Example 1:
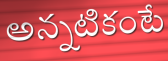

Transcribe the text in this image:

అన్నటికంటే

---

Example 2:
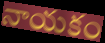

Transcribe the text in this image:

నాయకం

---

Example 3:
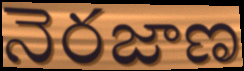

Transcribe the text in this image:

నెరజాణ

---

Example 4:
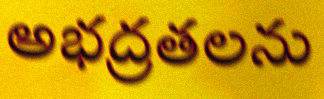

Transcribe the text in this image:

అభద్రతలను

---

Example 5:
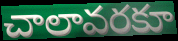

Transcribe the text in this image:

చాలావరకూ